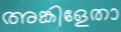
അങ്കിളേതാ